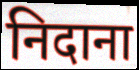
निदाना